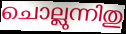
ചൊല്ലുന്നിതു